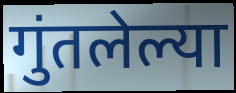
गुंतलेल्या